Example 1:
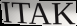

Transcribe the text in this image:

ITAK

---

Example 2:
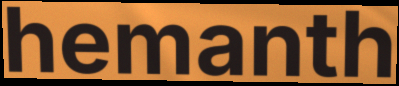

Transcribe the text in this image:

hemanth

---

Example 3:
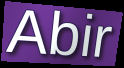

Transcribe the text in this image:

Abir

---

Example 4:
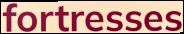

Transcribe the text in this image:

fortresses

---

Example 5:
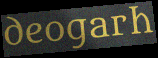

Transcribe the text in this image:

deogarh